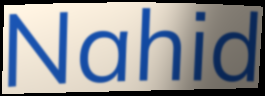
Nahid